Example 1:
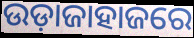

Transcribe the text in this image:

ଉଡ଼ାଜାହାଜରେ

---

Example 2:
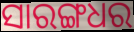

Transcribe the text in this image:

ସାରଙ୍ଗଧର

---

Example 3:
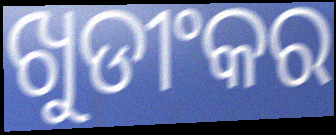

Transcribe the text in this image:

ଖୁଡୀଂକର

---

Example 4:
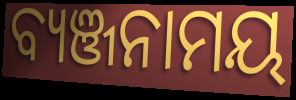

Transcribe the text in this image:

ବ୍ୟଞ୍ଜନାମୟ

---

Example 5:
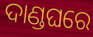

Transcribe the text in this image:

ଦାଣ୍ଡଘରେ